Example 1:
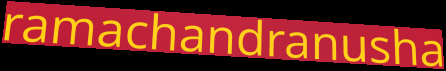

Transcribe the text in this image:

ramachandranusha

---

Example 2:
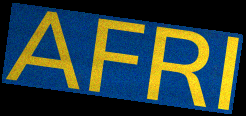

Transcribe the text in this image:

AFRI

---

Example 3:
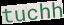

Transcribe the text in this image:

tuchh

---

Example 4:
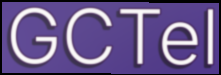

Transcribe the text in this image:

GCTel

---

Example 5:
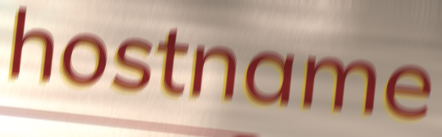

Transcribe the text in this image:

hostname